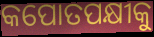
କପୋତପକ୍ଷୀକୁ